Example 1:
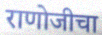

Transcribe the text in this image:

राणोजीचा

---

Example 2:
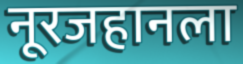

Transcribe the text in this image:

नूरजहानला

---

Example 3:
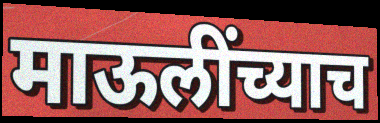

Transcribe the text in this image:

माऊलींच्याच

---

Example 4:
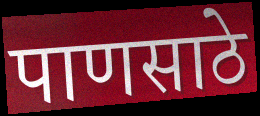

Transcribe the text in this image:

पाणसाठे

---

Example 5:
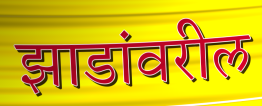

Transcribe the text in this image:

झाडांवरील